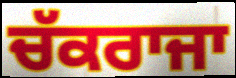
ਚੱਕਰਾਜਾ